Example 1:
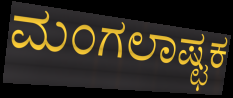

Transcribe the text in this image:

ಮಂಗಲಾಷ್ಟಕ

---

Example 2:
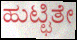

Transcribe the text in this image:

ಹುಟ್ಟಿತೇ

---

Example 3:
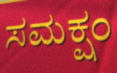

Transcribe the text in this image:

ಸಮಕ್ಷಂ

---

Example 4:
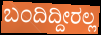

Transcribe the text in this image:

ಬಂದಿದ್ದೀರಲ್ಲ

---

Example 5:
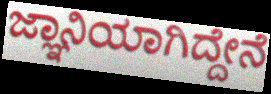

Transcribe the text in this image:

ಜ್ಞಾನಿಯಾಗಿದ್ದೇನೆ